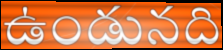
ఉండునది